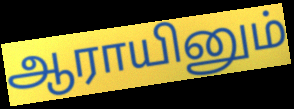
ஆராயினும்